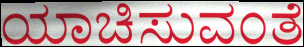
ಯಾಚಿಸುವಂತೆ